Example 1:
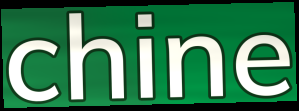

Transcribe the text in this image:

chine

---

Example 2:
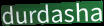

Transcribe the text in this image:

durdasha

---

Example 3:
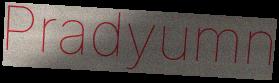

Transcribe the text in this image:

Pradyumn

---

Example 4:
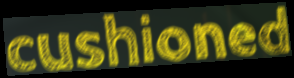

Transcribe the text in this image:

cushioned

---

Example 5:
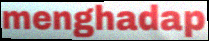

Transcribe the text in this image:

menghadap